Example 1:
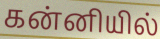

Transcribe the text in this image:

கன்னியில்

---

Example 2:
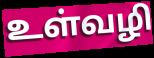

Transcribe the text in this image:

உள்வழி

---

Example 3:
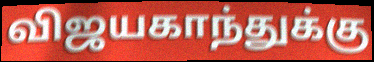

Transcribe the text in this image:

விஜயகாந்துக்கு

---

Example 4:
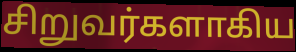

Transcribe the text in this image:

சிறுவர்களாகிய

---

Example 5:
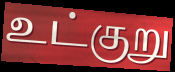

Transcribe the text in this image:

உட்குறு